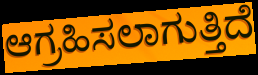
ಆಗ್ರಹಿಸಲಾಗುತ್ತಿದೆ